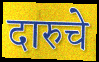
दारुचे